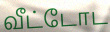
வீட்டோட